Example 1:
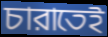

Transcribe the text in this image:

চারাতেই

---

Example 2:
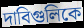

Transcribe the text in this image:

দাবিগুলিকে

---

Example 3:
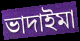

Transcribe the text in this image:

ভাদাইমা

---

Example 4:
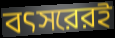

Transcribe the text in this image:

বৎসরেরই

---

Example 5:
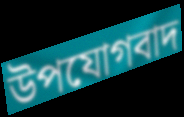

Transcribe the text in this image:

উপযোগবাদ